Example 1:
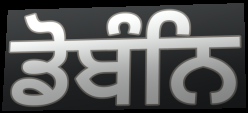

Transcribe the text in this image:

ਡੋਬੰਨਿ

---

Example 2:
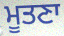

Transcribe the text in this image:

ਮੂਤਣਾ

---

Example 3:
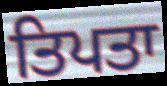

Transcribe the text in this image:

ਤਿਪਤਾ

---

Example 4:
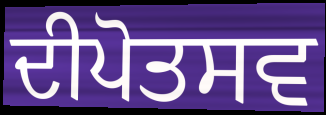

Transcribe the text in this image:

ਦੀਪੋਤਸਵ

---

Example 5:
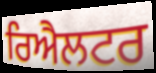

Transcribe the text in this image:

ਰਿਐਲਟਰ